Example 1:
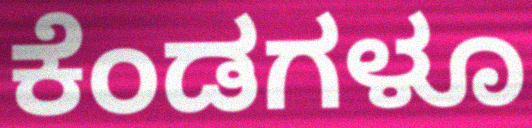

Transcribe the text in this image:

ಕೆಂಡಗಳೂ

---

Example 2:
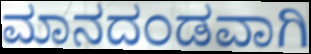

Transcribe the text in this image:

ಮಾನದಂಡವಾಗಿ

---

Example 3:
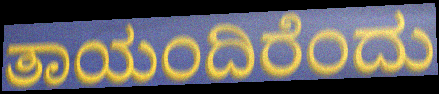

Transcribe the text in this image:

ತಾಯಂದಿರೆಂದು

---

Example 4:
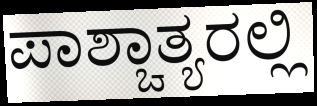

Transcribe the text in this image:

ಪಾಶ್ಚಾತ್ಯರಲ್ಲಿ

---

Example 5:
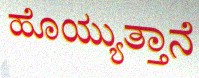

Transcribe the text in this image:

ಹೊಯ್ಯುತ್ತಾನೆ